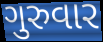
ગુરુવાર